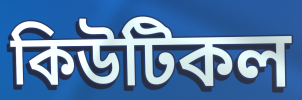
কিউটিকল